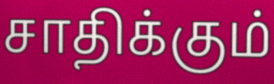
சாதிக்கும்